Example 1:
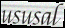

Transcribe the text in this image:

ususal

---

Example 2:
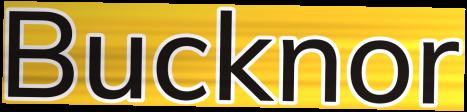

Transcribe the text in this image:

Bucknor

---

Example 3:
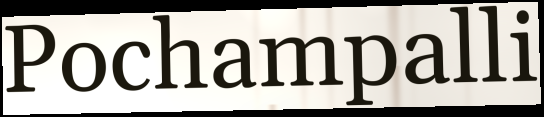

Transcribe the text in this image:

Pochampalli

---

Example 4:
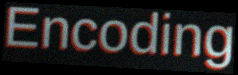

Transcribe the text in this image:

Encoding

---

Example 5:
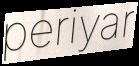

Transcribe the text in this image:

periyar